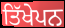
ਤਿੱਖੇਪਨ